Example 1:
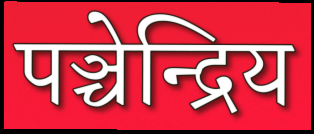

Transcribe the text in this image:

पञ्चेन्द्रिय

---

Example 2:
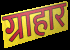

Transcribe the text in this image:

ग्राहार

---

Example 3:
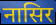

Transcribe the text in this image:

नासिर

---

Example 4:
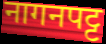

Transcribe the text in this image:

नागनपट्ट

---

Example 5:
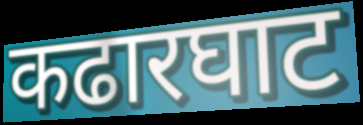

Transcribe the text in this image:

कढारघाट